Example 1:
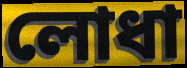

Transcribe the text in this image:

লোধা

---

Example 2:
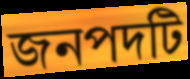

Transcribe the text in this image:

জনপদটি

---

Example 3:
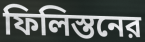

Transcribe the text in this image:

ফিলিস্তনের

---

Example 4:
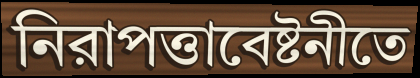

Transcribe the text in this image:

নিরাপত্তাবেষ্টনীতে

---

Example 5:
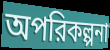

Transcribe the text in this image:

অপরিকল্পনা